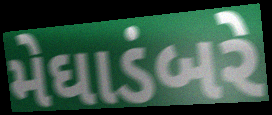
મેઘાડંબરે